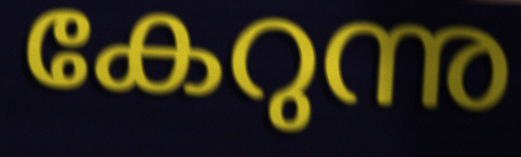
കേറുന്നു